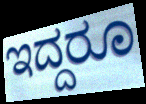
ಇದ್ದರೂ